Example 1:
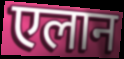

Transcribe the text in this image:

एलान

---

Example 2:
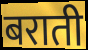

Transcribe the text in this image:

बराती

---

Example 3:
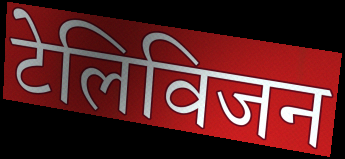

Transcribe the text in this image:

टेलिविजन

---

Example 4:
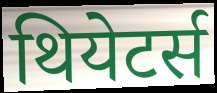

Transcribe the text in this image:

थियेटर्स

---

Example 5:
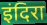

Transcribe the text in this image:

इंदिरा